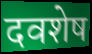
दवशेष